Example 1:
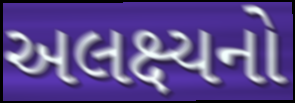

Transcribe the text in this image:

અલક્ષ્યનો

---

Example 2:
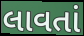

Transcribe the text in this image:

લાવતાં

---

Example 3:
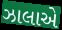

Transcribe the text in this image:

ઝાલાએ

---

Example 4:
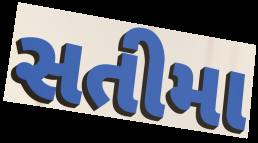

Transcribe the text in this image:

સતીમા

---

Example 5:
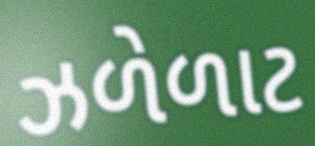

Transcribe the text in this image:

ઝળેળાટ